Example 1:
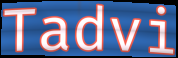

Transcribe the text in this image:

Tadvi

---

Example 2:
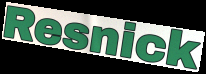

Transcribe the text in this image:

Resnick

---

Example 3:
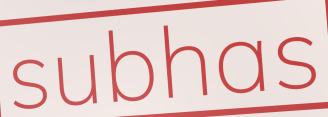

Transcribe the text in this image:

subhas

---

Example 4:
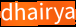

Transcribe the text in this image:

dhairya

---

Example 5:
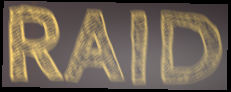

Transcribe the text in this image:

RAID